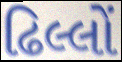
ઢિલ્લોં